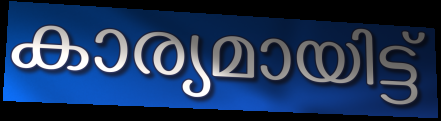
കാര്യമായിട്ട്